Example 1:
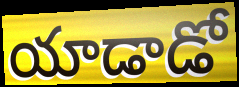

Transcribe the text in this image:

యాడాడో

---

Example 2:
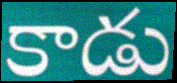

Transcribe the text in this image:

కాడు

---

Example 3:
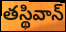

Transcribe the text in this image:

తస్థివాన్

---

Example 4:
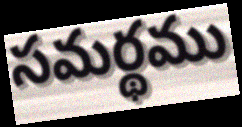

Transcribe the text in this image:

సమర్థము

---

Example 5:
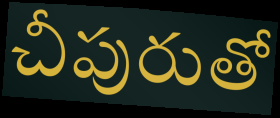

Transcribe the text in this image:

చీపురుతో